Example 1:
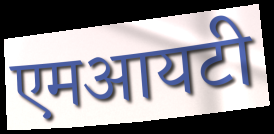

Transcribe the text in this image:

एमआयटी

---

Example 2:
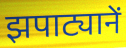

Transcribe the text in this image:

झपाट्यानें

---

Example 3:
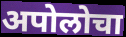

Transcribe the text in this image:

अपोलोचा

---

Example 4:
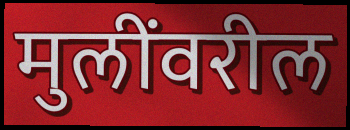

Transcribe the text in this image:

मुलींवरील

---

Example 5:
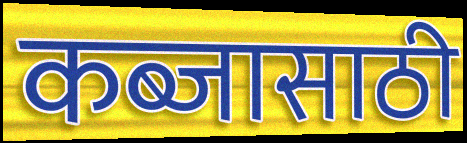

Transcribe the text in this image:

कब्जासाठी